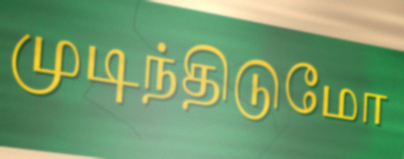
முடிந்திடுமோ